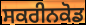
ਸਕਰੀਨਕੋਡ